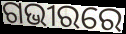
ଗଭୀରରେ